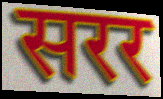
सरर